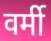
वर्मी